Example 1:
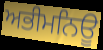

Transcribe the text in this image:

ਅਭੀਮਨਿਊ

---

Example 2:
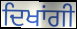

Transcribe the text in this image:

ਦਿਖਾਂਗੀ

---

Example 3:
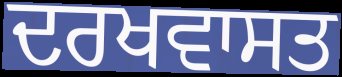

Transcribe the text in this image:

ਦਰਖਵਾਸਤ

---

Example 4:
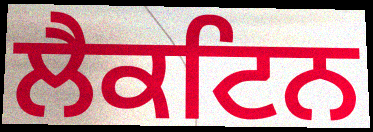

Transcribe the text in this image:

ਲੈਕਟਿਨ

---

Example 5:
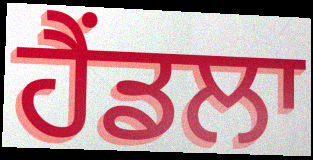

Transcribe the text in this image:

ਹੈਂਡਲਾ